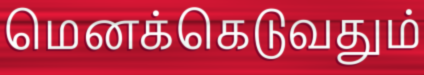
மெனக்கெடுவதும்